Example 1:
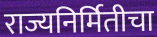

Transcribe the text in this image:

राज्यनिर्मितीचा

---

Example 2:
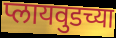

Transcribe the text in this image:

प्लायवुडच्या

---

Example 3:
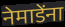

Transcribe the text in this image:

नेमाडेंना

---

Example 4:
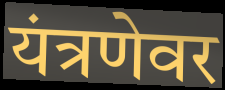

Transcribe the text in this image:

यंत्रणेवर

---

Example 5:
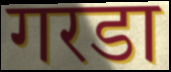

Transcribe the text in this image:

गरडा